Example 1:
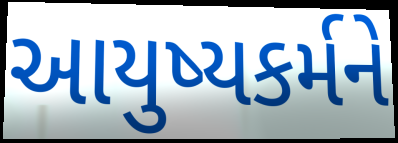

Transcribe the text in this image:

આયુષ્યકર્મને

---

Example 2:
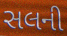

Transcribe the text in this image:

સલની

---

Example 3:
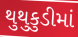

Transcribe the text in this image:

થુથુકુડીમાં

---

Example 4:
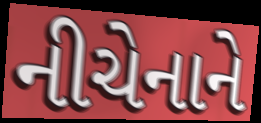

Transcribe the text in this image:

નીચેનાને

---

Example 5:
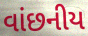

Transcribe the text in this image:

વાંછનીય